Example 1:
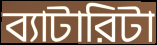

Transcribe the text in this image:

ব্যাটারিটা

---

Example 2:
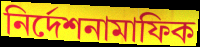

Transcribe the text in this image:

নির্দেশনামাফিক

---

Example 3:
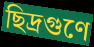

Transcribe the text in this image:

ছিদ্রগুণে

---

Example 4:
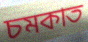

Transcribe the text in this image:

চমকাত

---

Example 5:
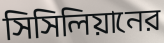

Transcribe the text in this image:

সিসিলিয়ানের